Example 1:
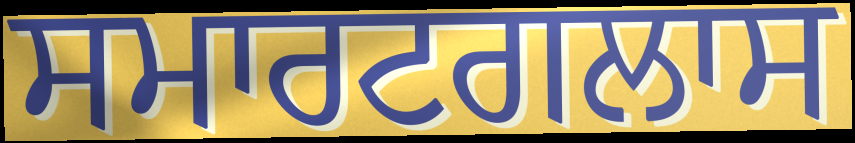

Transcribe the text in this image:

ਸਮਾਰਟਗਲਾਸ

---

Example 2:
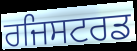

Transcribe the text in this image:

ਰਜਿਸਟਰਡ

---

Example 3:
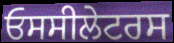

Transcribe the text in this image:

ਓਸਸੀਲੇਟਰਸ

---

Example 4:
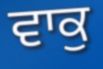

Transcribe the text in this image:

ਵਾਕੁ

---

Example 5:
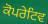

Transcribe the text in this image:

ਕੋਪਰੇਟਿਵ